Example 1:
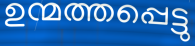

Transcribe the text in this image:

ഉന്മത്തപ്പെട്ടു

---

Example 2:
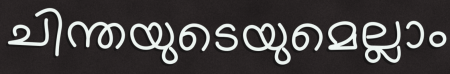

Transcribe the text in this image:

ചിന്തയുടെയുമെല്ലാം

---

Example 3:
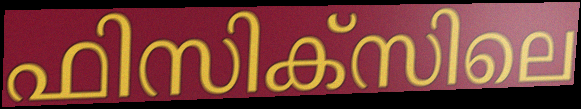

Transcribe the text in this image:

ഫിസിക്സിലെ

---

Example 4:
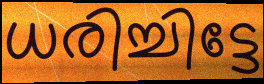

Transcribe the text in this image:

ധരിച്ചിട്ടേ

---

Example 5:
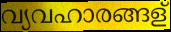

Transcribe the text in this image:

വ്യവഹാരങ്ങള്